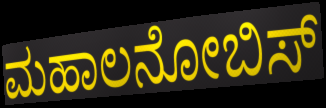
ಮಹಾಲನೋಬಿಸ್